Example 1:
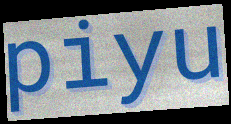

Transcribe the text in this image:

piyu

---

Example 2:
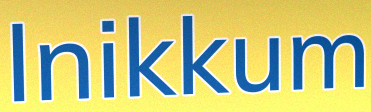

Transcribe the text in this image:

Inikkum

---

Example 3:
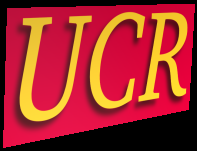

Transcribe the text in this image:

UCR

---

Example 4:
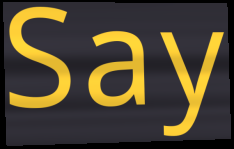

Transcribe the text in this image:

Say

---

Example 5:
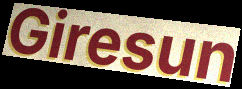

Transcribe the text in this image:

Giresun